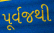
પૂર્વજથી